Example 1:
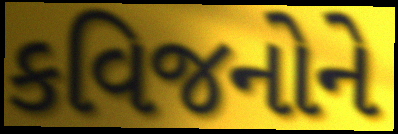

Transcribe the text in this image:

કવિજનોને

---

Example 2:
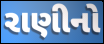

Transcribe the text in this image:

રાણીનો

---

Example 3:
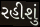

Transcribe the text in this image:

રહીશું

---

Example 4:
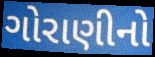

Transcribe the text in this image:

ગોરાણીનો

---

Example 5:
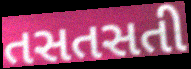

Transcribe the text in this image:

તસતસતી